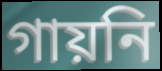
গায়নি